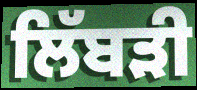
ਲਿੱਬੜੀ